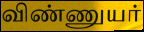
விண்ணுயர்